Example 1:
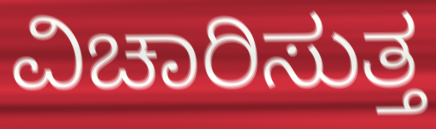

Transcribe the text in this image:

ವಿಚಾರಿಸುತ್ತ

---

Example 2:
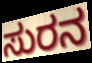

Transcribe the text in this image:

ಸುರನ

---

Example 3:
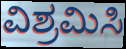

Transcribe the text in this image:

ವಿಶ್ರಮಿಸಿ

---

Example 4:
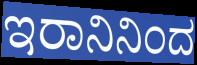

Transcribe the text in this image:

ಇರಾನಿನಿಂದ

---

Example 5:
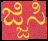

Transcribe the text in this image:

ಜ್ಜಿಸಿ